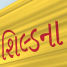
શિલ્ડના